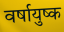
वर्षायुष्क